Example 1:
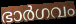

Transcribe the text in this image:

ഭാർഗവം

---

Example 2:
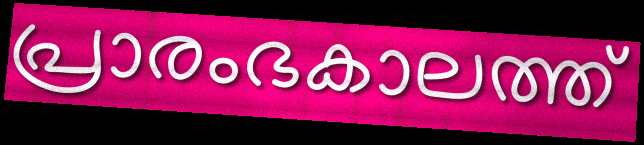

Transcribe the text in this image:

പ്രാരംഭകാലത്ത്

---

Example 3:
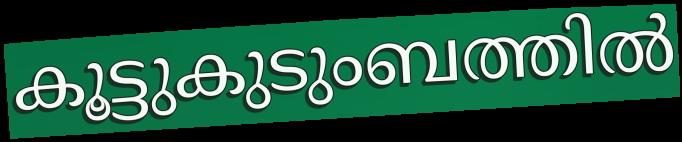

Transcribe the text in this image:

കൂട്ടുകുടുംബത്തിൽ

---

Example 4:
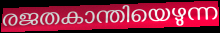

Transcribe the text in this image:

രജതകാന്തിയെഴുന്ന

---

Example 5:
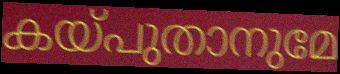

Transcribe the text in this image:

കയ്പുതാനുമേ